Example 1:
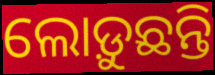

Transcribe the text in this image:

ଲୋଡ଼ୁଛନ୍ତି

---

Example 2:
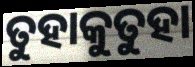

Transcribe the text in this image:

ତୁହାକୁତୁହା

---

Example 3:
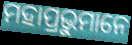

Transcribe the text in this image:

ମହାପ୍ରଭୁମାନେ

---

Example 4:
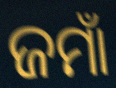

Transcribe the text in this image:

ଜମାଁ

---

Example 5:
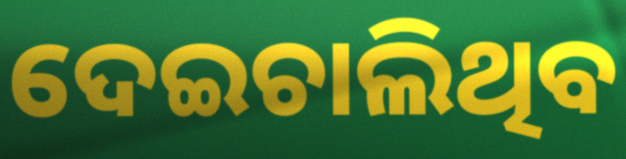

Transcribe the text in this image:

ଦେଇଚାଲିଥିବ